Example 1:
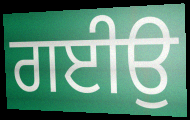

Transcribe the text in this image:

ਗਈਉ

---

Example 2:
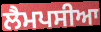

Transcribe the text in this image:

ਲੈਮਪਸੀਆ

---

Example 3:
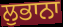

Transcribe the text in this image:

ਲੁਭਾਨਾ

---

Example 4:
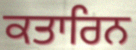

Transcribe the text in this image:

ਕਤਾਰਿਨ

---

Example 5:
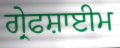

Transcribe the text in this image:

ਗ੍ਰੇਫਸ਼ਾਈਮ